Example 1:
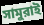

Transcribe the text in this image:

সামুরাই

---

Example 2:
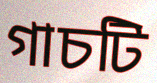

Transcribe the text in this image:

গাচটি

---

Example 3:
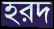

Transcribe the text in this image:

হরদ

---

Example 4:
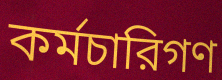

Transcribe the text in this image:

কর্মচারিগণ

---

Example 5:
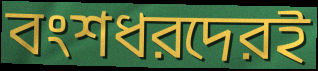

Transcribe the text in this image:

বংশধরদেরই